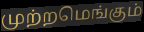
முற்றமெங்கும்